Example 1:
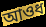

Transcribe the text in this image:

আওধ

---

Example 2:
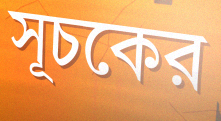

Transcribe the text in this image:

সূচকের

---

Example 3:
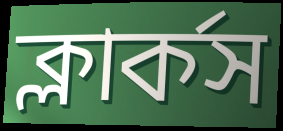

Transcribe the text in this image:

ক্লার্কস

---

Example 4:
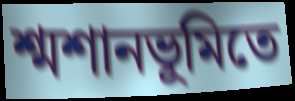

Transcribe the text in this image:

শ্মশানভূমিতে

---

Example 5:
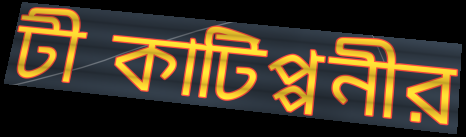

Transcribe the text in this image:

টীকাটিপ্পনীর